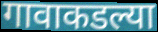
गावाकडल्या